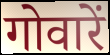
गोवारें